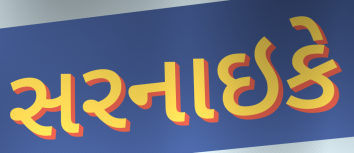
સરનાઇકે